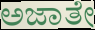
ಅಜಾತೇ